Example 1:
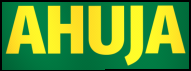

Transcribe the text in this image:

AHUJA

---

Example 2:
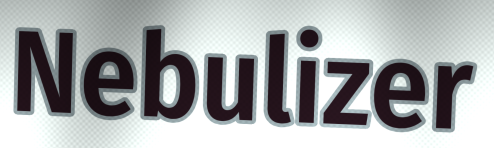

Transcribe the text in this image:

Nebulizer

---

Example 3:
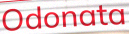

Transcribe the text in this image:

Odonata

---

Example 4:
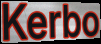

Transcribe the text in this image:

Kerbo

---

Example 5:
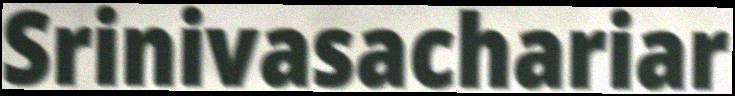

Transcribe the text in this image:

Srinivasachariar